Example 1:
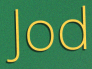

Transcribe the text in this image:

Jod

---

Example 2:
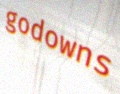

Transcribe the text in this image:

godowns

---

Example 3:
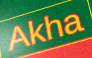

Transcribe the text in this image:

Akha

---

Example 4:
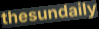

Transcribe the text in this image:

thesundaily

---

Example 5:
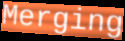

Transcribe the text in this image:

Merging